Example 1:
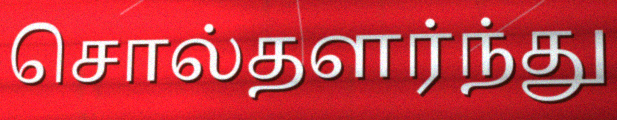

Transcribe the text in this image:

சொல்தளர்ந்து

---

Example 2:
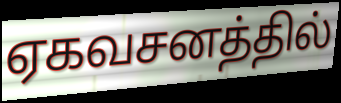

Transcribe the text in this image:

ஏகவசனத்தில்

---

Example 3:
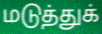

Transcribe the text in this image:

மடுத்துக்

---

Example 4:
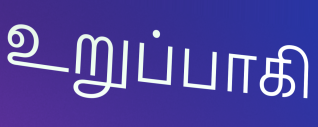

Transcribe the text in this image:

உறுப்பாகி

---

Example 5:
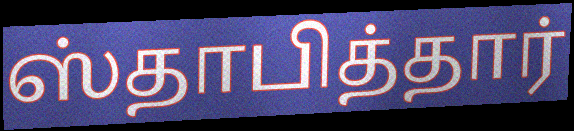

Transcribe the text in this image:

ஸ்தாபித்தார்